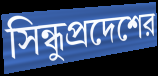
সিন্ধুপ্রদেশের